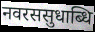
नवरससुधाब्धि